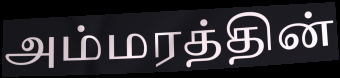
அம்மரத்தின்